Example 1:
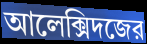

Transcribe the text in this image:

আলেক্সিদজের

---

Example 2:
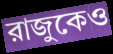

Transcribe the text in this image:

রাজুকেও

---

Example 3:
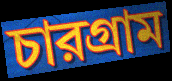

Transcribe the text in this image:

চারগ্রাম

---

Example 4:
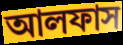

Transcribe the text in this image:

আলফাস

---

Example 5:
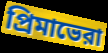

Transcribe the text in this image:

প্রিমাভেরা